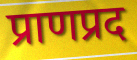
प्राणप्रद